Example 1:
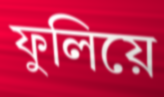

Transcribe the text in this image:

ফুলিয়ে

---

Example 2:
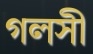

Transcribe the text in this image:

গলসী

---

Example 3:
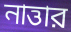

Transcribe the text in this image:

নাত্তার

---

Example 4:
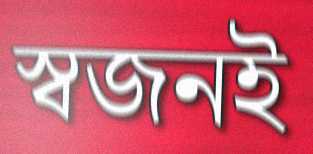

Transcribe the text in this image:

স্বজনই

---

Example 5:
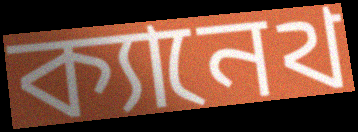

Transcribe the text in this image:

ক্যানেথ